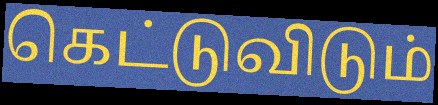
கெட்டுவிடும்